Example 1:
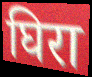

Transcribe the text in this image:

घिरा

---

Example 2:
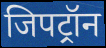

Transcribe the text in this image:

जिपट्रॉन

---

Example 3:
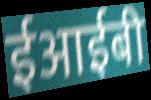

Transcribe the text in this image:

ईआईबी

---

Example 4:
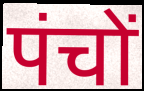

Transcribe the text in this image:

पंचों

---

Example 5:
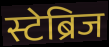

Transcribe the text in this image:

स्टेब्रिज